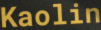
Kaolin